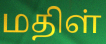
மதிள்